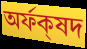
অর্ফক্‌ষদ